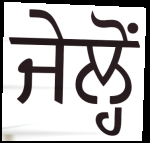
ਜੇਲ੍ਹੋਂ